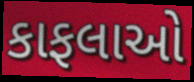
કાફલાઓ